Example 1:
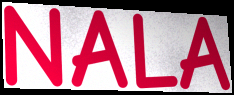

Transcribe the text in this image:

NALA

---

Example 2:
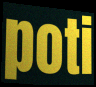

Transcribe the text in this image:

poti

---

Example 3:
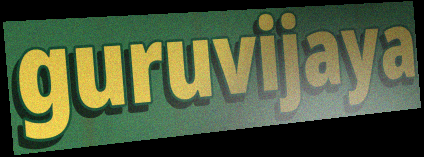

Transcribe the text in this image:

guruvijaya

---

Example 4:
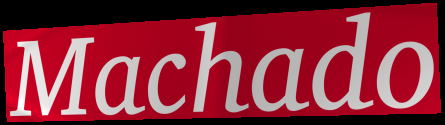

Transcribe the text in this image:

Machado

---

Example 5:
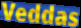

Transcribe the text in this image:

Veddas